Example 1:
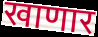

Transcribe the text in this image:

खाणार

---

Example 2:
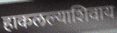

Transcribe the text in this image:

हाकलल्याशिवाय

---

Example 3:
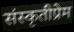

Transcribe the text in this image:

संस्कृतीप्रेम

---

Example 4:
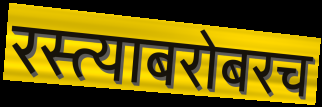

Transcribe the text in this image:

रस्त्याबरोबरच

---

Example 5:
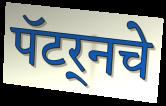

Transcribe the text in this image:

पॅटर्नचे